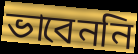
ভাবেননি